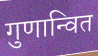
गुणान्वित